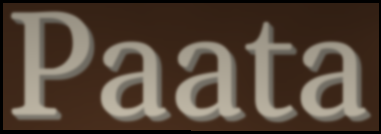
Paata